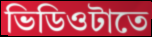
ভিডিওটাতে